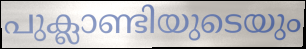
പുക്ലാണ്ടിയുടെയും